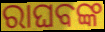
ରାଘବଙ୍କ